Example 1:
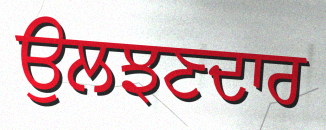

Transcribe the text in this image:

ਉਲਝਣਦਾਰ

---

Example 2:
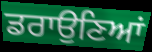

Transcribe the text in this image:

ਡਰਾਉਣਿਆਂ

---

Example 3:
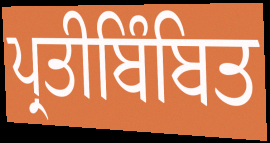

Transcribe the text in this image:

ਪ੍ਰਤੀਬਿੰਬਿਤ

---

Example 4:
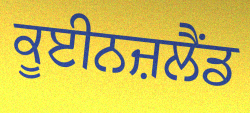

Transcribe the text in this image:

ਕੂਈਨਜ਼ਲੈਂਡ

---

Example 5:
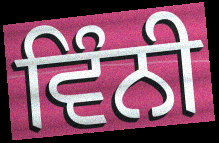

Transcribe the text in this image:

ਵਿੰਨੀ